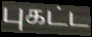
புகட்ட